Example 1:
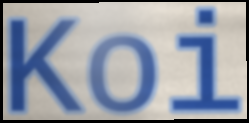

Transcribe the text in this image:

Koi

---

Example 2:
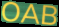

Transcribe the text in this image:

OAB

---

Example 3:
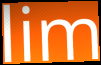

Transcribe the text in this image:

lim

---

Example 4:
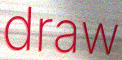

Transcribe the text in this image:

draw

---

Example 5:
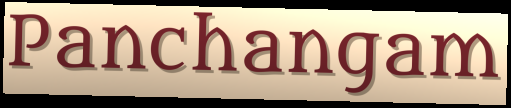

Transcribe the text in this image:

Panchangam